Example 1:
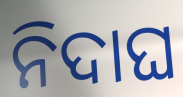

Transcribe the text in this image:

ନିଦାଘ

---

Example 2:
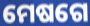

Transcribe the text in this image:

ମେଷଗେ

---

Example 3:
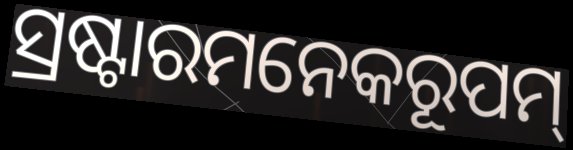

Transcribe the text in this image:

ସ୍ରଷ୍ଟାରମନେକରୂପମ୍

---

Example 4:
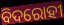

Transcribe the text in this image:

ବିଦରୋହୀ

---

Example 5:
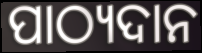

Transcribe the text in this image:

ପାଠ୍ୟଦାନ